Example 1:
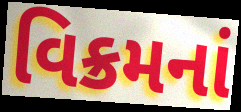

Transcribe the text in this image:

વિક્રમનાં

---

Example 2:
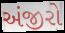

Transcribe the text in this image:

અંજીરો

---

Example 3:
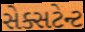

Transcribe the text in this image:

સેક્સટેન્ટ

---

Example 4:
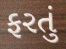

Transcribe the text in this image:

ફરતું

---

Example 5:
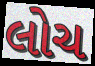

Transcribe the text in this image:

લોચ